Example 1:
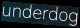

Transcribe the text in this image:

underdog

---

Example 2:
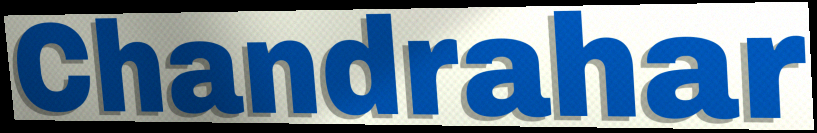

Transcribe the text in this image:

Chandrahar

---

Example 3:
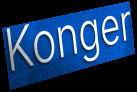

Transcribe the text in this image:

Konger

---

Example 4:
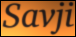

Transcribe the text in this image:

Savji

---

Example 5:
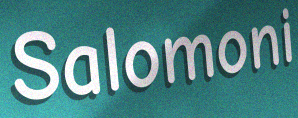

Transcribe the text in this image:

Salomoni